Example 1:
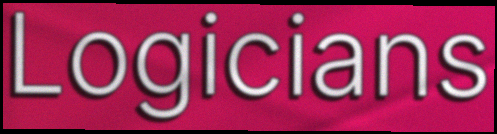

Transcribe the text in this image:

Logicians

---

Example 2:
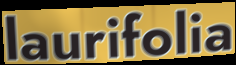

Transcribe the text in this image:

laurifolia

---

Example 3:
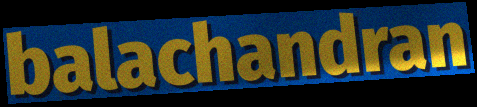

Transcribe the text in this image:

balachandran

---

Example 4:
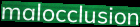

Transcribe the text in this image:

malocclusion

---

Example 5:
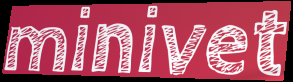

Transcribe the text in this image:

minivet